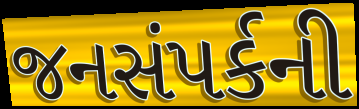
જનસંપર્કની